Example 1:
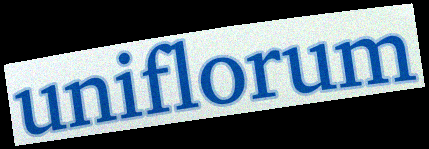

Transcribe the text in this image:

uniflorum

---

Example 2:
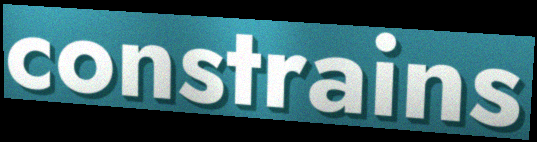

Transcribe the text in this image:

constrains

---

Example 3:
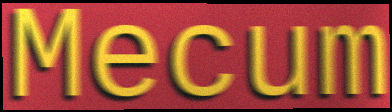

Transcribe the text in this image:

Mecum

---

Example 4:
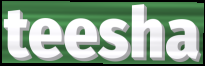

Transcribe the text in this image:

teesha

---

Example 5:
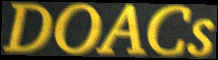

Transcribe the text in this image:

DOACs